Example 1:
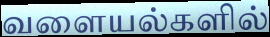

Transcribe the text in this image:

வளையல்களில்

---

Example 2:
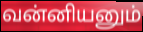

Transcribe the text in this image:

வன்னியனும்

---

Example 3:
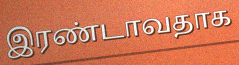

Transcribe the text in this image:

இரண்டாவதாக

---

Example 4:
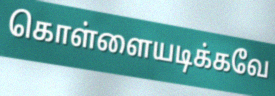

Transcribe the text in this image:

கொள்ளையடிக்கவே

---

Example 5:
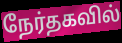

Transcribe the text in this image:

நேர்தகவில்